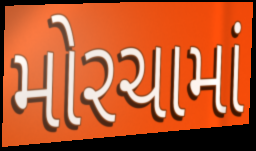
મોરચામાં